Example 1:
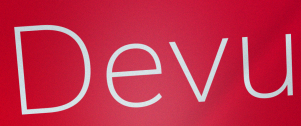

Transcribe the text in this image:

Devu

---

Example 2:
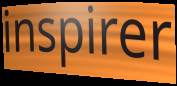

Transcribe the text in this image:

inspirer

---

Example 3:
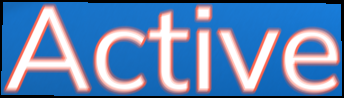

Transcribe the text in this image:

Active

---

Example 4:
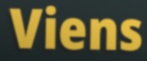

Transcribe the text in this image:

Viens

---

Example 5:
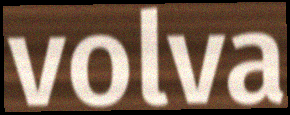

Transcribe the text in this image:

volva